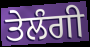
ਤੇਲੰਗੀ